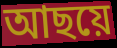
আছয়ে